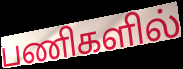
பணிகளில்